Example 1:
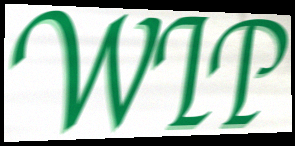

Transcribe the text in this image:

WIP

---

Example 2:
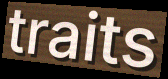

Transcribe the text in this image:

traits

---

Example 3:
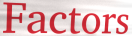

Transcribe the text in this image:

Factors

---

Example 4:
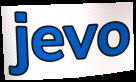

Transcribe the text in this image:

jevo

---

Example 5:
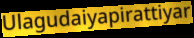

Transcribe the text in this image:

Ulagudaiyapirattiyar